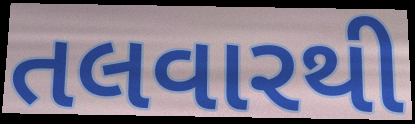
તલવારથી